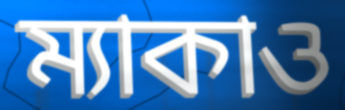
ম্যাকাও